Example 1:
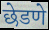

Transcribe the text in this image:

छेडणे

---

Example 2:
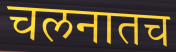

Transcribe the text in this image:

चलनातच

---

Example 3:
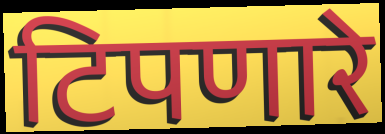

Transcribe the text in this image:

टिपणारे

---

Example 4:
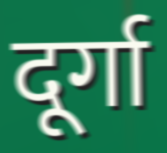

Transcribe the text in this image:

दूर्गा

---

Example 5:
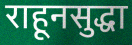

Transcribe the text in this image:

राहूनसुद्धा